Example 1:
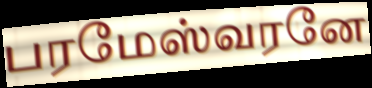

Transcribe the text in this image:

பரமேஸ்வரனே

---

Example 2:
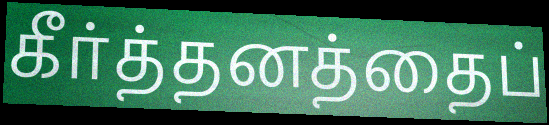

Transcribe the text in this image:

கீர்த்தனத்தைப்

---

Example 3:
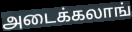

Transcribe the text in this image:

அடைக்கலாங்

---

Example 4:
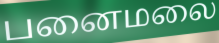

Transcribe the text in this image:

பனைமலை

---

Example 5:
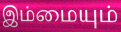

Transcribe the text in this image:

இம்மையும்